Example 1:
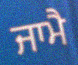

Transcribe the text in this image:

ਜਾਮੈ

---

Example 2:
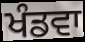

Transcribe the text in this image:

ਖੰਡਵਾ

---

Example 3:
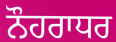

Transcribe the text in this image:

ਨੌਹਰਾਧਰ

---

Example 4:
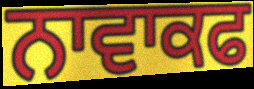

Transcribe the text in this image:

ਨਾਵਾਕਫ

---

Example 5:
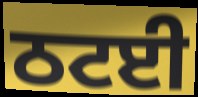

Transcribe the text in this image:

ਠਟਈ